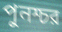
পুনশ্চর